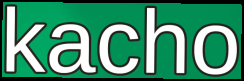
kacho